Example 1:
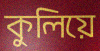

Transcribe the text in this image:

কুলিয়ে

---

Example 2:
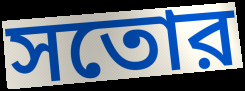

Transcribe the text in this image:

সতোর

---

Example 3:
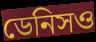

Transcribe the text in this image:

ডেনিসও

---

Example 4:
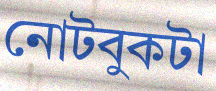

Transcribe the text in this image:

নোটবুকটা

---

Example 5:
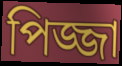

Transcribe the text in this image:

পিজ্জা